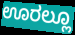
ಊರಲ್ಲೂ